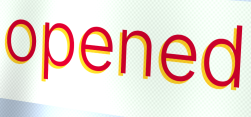
opened